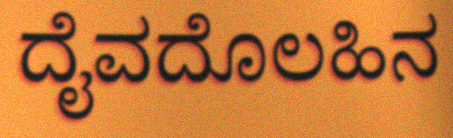
ದೈವದೊಲಹಿನ